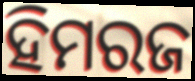
ହିମରଜ